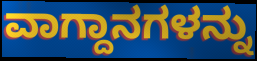
ವಾಗ್ದಾನಗಳನ್ನು